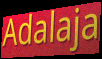
Adalaja